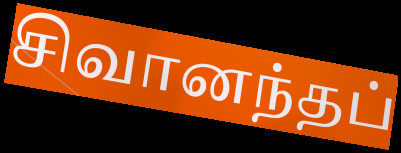
சிவானந்தப்